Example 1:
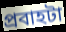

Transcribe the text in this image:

প্রবাহটা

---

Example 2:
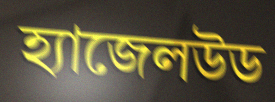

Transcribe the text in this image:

হ্যাজেলউড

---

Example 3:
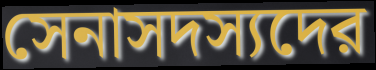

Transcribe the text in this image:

সেনাসদস্যদের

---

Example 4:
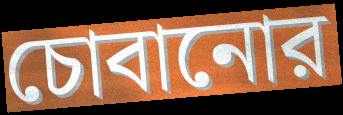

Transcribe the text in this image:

চোবানোর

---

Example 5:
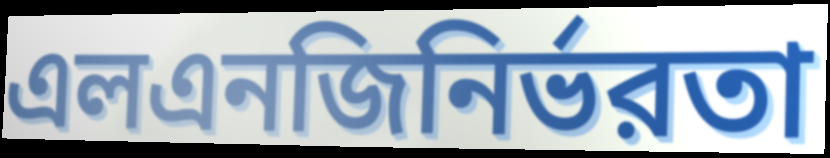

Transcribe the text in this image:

এলএনজিনির্ভরতা